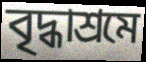
বৃদ্ধাশ্রমে